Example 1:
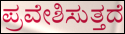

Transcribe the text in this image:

ಪ್ರವೇಶಿಸುತ್ತದೆ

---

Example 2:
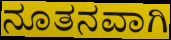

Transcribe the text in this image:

ನೂತನವಾಗಿ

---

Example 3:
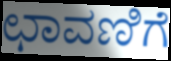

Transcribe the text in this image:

ಛಾವಣಿಗೆ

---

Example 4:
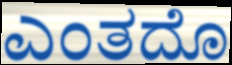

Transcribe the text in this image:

ಎಂತದೊ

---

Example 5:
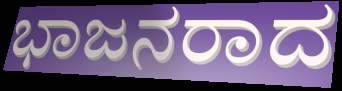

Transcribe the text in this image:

ಭಾಜನರಾದ